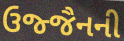
ઉજ્જૈનની